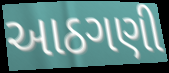
આઠગણી